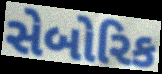
સેબોરિક